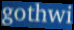
gothwi